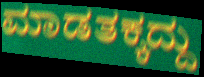
ಮಾಡತಕ್ಕದ್ದು